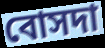
বোসদা